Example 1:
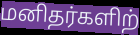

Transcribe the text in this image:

மனிதர்களிற்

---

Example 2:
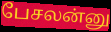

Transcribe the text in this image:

பேசலன்னு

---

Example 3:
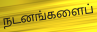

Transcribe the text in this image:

நடனங்களைப்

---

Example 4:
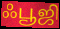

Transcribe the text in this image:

ஃபூஜி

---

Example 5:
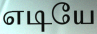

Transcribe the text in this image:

எடியே